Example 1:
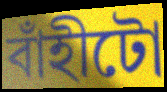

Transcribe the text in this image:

বাঁহীটো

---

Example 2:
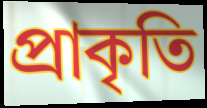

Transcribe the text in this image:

প্ৰাকৃতি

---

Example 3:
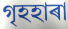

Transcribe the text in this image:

গৃহহাৰা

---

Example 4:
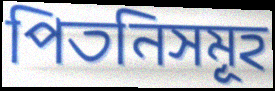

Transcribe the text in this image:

পিতনিসমূহ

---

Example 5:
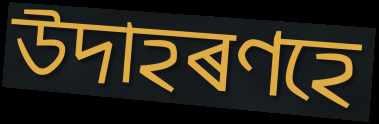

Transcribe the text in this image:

উদাহৰণহে